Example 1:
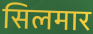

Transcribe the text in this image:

सिलमार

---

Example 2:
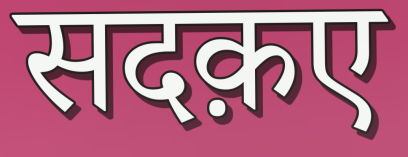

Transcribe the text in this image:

सदक़ए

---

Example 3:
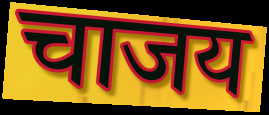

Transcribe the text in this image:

चाजय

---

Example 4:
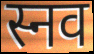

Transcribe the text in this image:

स्नव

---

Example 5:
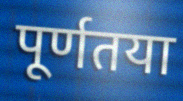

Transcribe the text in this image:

पूर्णतया